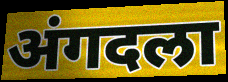
अंगदला